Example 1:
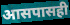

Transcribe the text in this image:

आसपासही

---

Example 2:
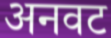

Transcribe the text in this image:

अनवट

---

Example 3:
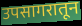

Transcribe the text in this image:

उपसागरातून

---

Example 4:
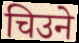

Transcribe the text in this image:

चिउने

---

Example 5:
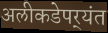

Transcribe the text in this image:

अलीकडेपर्यंत